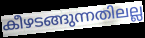
കീഴടങ്ങുന്നതിലല്ല